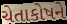
ચેતાકોષને